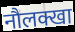
नौलक्खा